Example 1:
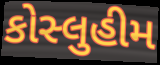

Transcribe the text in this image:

કોસ્લુહીમ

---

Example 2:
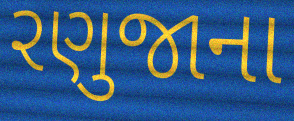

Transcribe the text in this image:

રણુજાના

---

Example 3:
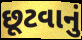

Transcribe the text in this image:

છૂટવાનું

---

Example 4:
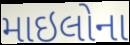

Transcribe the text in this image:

માઇલોના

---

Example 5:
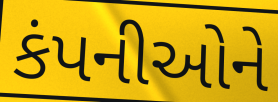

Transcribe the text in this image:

કંપનીઓને